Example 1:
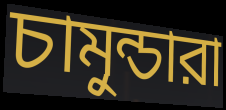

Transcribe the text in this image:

চামুন্ডারা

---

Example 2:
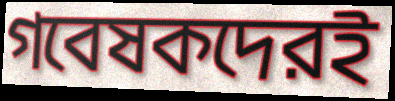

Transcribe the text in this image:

গবেষকদেরই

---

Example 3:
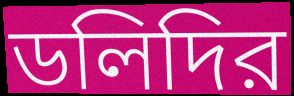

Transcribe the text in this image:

ডলিদির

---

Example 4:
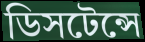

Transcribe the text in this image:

ডিসটেন্সে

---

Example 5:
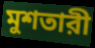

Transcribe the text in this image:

মুশতারী